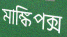
মাঙ্কিপক্স